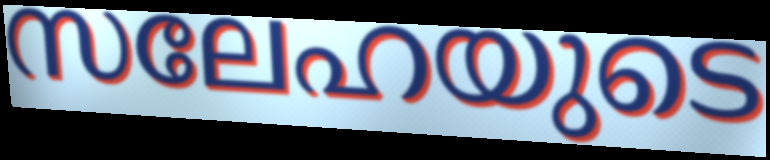
സലേഹയുടെ